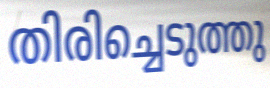
തിരിച്ചെടുത്തു